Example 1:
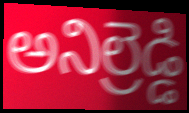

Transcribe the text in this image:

అనిల్రెడ్డి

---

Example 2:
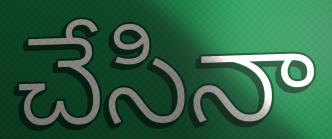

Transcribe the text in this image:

చేసినా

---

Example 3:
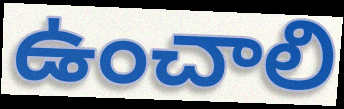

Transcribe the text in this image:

ఉంచాలి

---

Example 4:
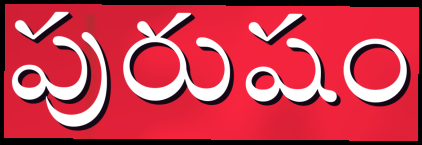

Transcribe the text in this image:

పురుషం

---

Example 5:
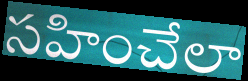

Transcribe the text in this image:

సహించేలా